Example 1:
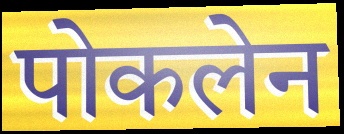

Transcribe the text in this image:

पोकलेन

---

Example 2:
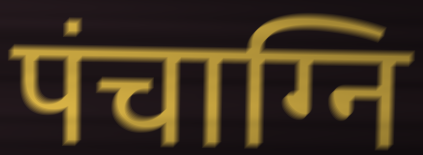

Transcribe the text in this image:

पंचाग्नि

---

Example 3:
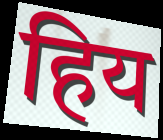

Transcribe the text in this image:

हिय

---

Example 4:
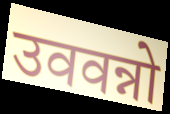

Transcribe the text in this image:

उववन्नो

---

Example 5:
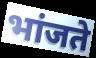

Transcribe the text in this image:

भांजते